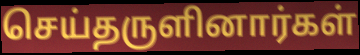
செய்தருளினார்கள்